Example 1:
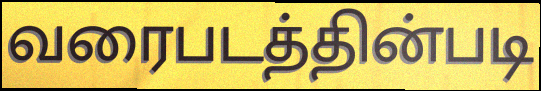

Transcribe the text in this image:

வரைபடத்தின்படி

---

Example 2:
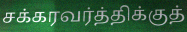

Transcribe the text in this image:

சக்கரவர்த்திக்குத்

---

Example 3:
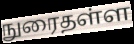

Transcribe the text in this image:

நுரைதள்ள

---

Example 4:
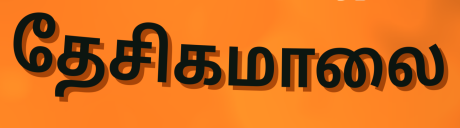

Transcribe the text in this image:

தேசிகமாலை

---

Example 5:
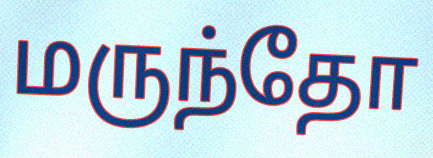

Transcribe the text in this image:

மருந்தோ